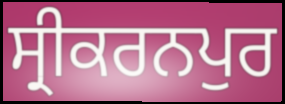
ਸ੍ਰੀਕਰਨਪੁਰ